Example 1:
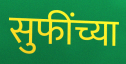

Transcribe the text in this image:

सुफींच्या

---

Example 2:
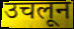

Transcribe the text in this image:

उचलून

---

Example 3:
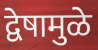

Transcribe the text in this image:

द्वेषामुळे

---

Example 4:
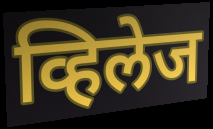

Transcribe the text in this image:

व्हिलेज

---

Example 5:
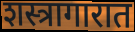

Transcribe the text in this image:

शस्त्रागारात